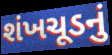
શંખચૂડનું